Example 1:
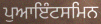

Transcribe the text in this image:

ਪੁਆਇੰਟਸਮਿਨ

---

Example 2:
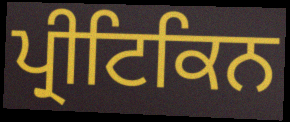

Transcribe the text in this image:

ਪ੍ਰੀਟਿਕਿਨ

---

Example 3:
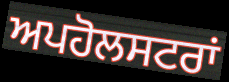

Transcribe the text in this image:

ਅਪਹੋਲਸਟਰਾਂ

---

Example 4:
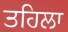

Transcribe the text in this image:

ਤਹਿਲਾ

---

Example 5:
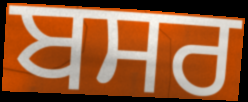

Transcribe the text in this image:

ਬਸਰ